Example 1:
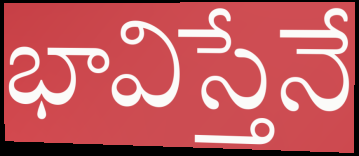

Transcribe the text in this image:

భావిస్తేనే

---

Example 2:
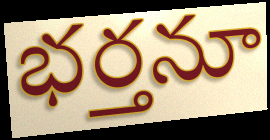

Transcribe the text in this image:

భర్తనూ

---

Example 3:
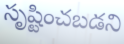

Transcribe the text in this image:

సృష్టించబడని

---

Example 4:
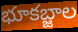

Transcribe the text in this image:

భూకబ్జాల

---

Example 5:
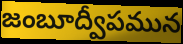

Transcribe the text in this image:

జంబూద్వీపమున